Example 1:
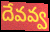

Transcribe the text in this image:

దేవవ్వ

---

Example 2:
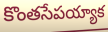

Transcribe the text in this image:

కొంతసేపయ్యాక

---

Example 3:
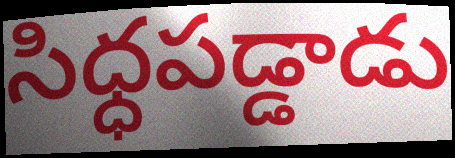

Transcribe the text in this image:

సిధ్ధపడ్డాడు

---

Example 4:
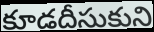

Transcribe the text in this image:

కూడదీసుకుని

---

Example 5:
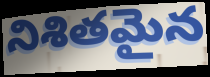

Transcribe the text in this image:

నిశితమైన